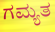
ಗಮ್ಯತ